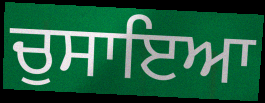
ਚੁਸਾਇਆ